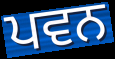
ਪਵਨ